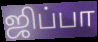
ஜிப்பா